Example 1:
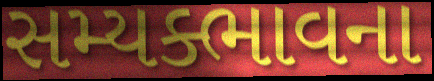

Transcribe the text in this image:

સમ્યક્ભાવના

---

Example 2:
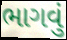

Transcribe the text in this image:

ભાગવું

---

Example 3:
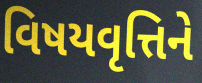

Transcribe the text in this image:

વિષયવૃત્તિને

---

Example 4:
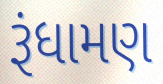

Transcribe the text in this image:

રૂંધામણ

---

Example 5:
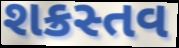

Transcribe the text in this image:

શક્રસ્તવ